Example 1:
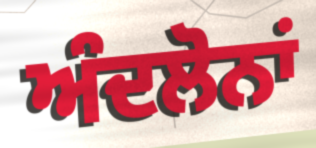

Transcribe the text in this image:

ਅੰਦਲੋਨਾਂ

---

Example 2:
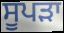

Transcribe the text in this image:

ਸੂਪੜਾ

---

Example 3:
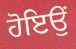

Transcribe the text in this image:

ਹੋਇਉਂ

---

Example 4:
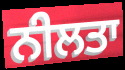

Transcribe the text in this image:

ਨੀਲਤਾ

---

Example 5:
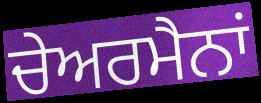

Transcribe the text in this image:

ਚੇਅਰਮੈਨਾਂ